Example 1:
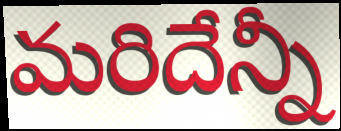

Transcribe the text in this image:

మరిదేన్నీ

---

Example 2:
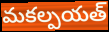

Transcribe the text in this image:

మకల్పయత్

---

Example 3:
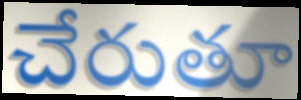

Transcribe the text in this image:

చేరుతూ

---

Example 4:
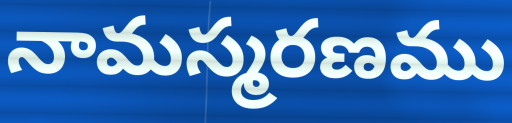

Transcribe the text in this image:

నామస్మరణము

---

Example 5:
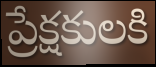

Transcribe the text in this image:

ప్రేక్షకులకి